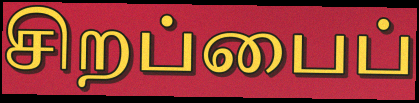
சிறப்பைப்